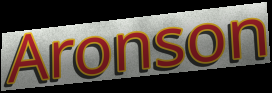
Aronson